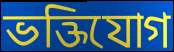
ভক্তিযোগ